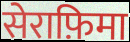
सेराफ़िमा